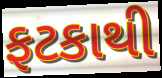
ફટકાથી